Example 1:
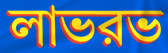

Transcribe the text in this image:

লাভরভ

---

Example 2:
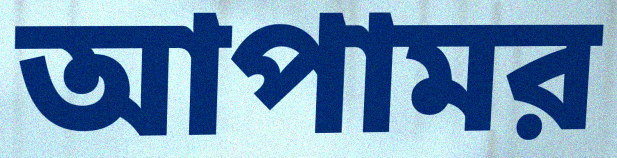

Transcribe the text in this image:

আপামর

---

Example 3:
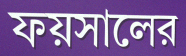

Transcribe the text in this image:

ফয়সালের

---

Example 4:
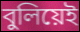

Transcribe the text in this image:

বুলিয়েই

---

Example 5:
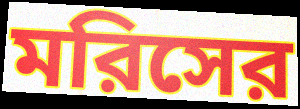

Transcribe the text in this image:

মরিসের